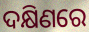
ଦକ୍ଷିଣରେ